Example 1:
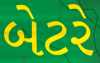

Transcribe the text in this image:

બેટરે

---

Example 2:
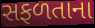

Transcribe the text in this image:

સફળતાના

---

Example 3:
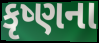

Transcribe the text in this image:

કૃષ્ણના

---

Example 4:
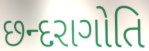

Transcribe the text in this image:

છન્દરાગોતિ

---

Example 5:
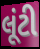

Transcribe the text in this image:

લૂંટી